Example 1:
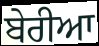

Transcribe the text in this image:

ਬੇਰੀਆ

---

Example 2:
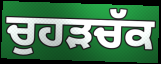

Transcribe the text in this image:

ਚੁਹੜਚੱਕ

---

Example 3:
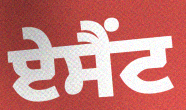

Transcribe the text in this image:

ਏਸੈਂਟ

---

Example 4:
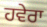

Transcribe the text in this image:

ਹਵੇਰਾ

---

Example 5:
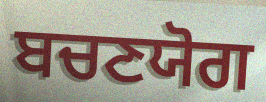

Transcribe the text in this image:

ਬਚਣਯੋਗ